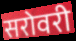
सरोवरी